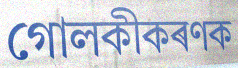
গোলকীকৰণক